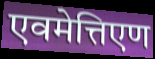
एवमेत्तिएण